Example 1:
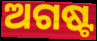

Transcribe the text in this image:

ଅଗଷ୍ଟ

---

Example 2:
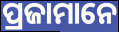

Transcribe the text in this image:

ପ୍ରଜାମାନେ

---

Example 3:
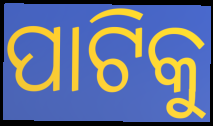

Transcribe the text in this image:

ପାଟିକୁ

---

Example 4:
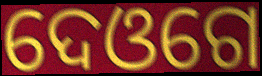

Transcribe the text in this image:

ଦେଓଗେ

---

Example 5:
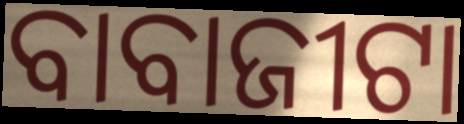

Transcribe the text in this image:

ବାବାଜୀଟା